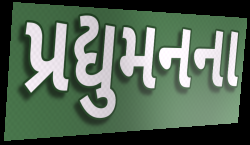
પ્રદ્યુમનના